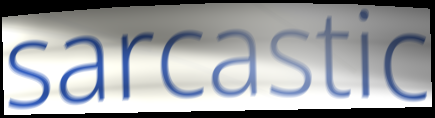
sarcastic